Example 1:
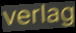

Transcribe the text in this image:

verlag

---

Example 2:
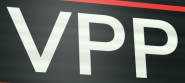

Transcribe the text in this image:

VPP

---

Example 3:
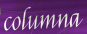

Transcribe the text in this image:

columna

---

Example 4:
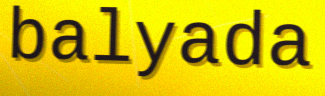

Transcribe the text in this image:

balyada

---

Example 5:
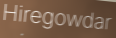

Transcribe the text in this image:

Hiregowdar